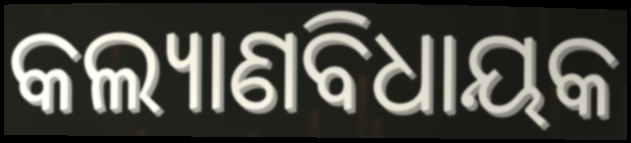
କଲ୍ୟାଣବିଧାୟକ